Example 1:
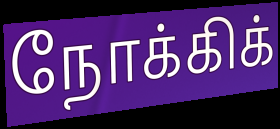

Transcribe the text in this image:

நோக்கிக்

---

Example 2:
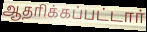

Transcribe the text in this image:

ஆதரிக்கப்பட்டார்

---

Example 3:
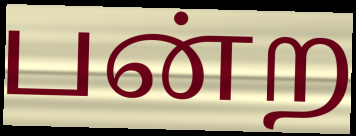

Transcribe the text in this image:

பன்ற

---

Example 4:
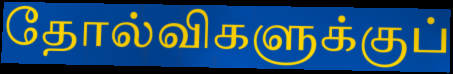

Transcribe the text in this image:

தோல்விகளுக்குப்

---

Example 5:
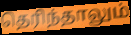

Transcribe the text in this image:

தெரிந்தாலும்